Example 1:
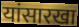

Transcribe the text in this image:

यांसारखा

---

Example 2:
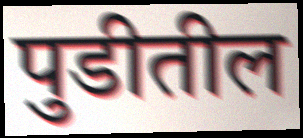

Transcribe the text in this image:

पुडीतील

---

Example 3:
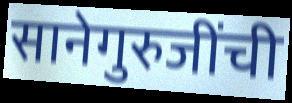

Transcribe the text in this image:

सानेगुरुजींची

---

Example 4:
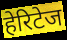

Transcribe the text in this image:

हेरिटेज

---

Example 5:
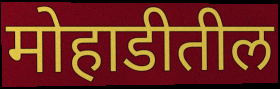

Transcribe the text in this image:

मोहाडीतील